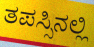
ತಪಸ್ಸಿನಲ್ಲಿ